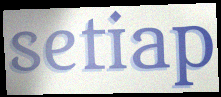
setiap